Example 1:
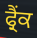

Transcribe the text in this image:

ਫ੍ਰੈਂਕ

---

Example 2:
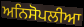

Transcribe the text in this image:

ਅਨਿਸੋਪਲੀਆ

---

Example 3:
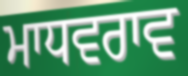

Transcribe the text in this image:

ਮਾਧਵਰਾਵ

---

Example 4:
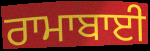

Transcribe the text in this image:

ਰਾਮਾਬਾਈ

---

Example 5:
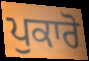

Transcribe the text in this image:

ਪੁਕਾਰੋ